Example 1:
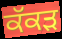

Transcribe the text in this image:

ਕੱਕੜ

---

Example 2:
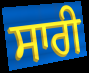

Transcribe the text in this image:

ਸਾਰੀ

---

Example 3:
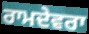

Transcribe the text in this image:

ਰਾਮਦੇਵਰਾ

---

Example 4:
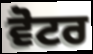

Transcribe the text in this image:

ਵੋਟਰ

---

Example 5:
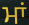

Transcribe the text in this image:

ਮਾਂ